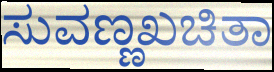
ಸುವಣ್ಣಖಚಿತಾ